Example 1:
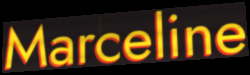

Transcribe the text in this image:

Marceline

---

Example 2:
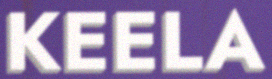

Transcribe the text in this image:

KEELA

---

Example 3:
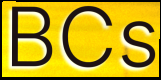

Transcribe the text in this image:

BCs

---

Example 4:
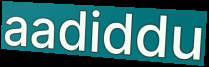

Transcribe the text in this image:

aadiddu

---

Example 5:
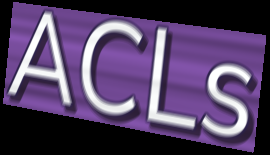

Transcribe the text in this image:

ACLs